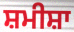
ਸ਼ਮੀਸ਼ਾ